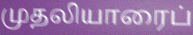
முதலியாரைப்